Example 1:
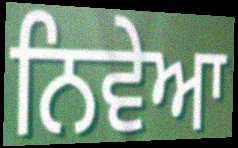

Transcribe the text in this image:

ਨਿਵੇਆ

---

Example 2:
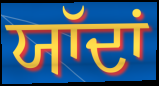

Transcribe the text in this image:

ਯਾੱਦਾਂ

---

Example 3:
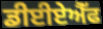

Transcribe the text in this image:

ਡੀਈਏਐੱਫ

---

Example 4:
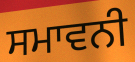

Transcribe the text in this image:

ਸਮਾਵਨੀ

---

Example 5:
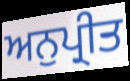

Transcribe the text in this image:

ਅਨੁਪ੍ਰੀਤ